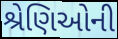
શ્રેણિઓની